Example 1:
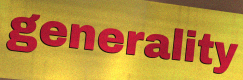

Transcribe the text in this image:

generality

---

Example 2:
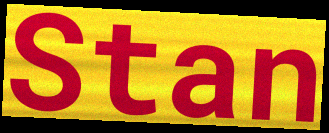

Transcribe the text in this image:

Stan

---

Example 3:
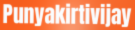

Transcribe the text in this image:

Punyakirtivijay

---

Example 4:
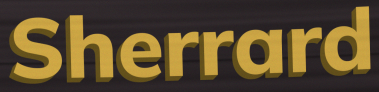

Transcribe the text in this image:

Sherrard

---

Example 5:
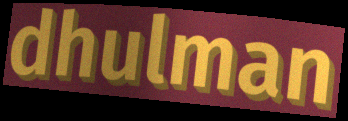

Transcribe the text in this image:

dhulman